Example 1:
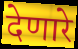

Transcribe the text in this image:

देणारे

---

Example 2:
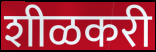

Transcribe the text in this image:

शीळकरी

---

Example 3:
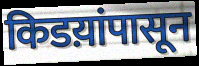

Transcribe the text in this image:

किडय़ांपासून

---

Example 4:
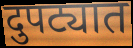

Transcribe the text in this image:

दुपट्यात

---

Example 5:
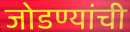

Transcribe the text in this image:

जोडण्यांची